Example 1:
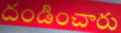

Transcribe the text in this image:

దండించారు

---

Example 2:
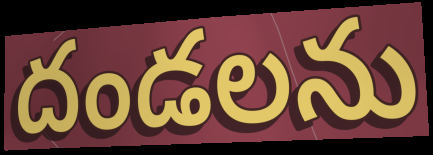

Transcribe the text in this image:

దండలను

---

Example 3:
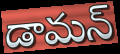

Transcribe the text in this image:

డామన్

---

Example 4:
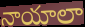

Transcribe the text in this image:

నాయాలా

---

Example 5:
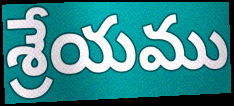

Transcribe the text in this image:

శ్రేయము